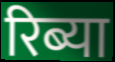
रिब्या